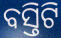
ବସ୍ତିଟି